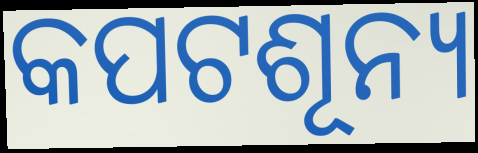
କପଟଶୂନ୍ୟ